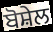
ਬੋਸ਼ੇਲ